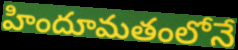
హిందూమతంలోనే